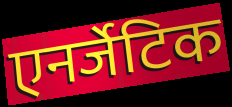
एनर्जेटिक